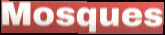
Mosques